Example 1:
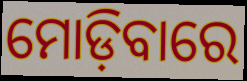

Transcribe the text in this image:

ମୋଡ଼ିବାରେ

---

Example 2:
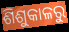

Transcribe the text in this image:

ଶିଶୁକାଳରୁ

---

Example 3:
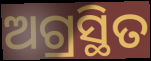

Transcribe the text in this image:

ଅଗ୍ରସ୍ଥିତ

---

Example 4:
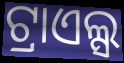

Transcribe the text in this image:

ଟ୍ରାଏଲ୍ସ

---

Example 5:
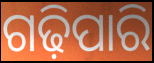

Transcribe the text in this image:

ଗଢ଼ିପାରି